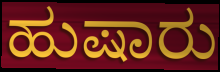
ಹುಷಾರು